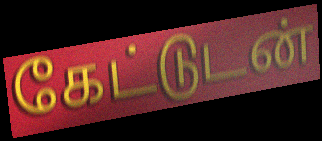
கேட்டுடன்